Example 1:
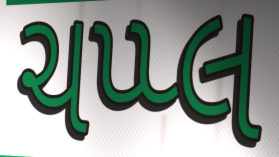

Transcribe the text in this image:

ચપ્પ્લ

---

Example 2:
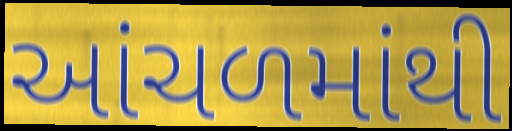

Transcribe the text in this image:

આંચળમાંથી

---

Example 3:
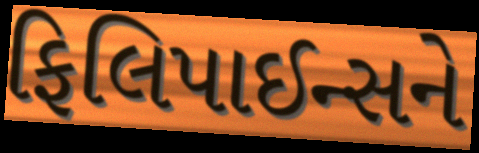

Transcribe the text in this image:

ફિલિપાઈન્સને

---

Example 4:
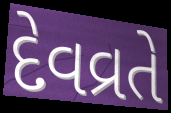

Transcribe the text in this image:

દેવવ્રતે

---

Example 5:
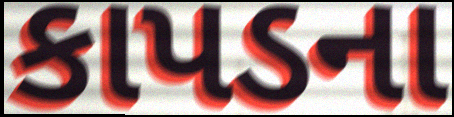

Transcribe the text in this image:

કાપડના